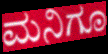
ಮನಿಗೂ